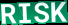
RISK